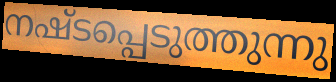
നഷ്ടപ്പെടുത്തുന്നു